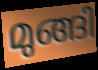
മുങ്ങി